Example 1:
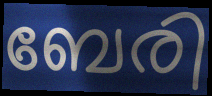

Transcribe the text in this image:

ബേരി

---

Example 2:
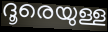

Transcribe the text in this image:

ദൂരെയുള്ള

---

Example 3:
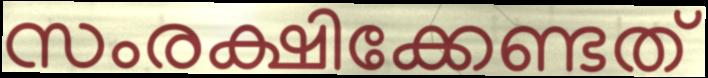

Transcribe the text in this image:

സംരക്ഷിക്കേണ്ടത്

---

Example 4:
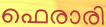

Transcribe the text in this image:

ഫെരാരി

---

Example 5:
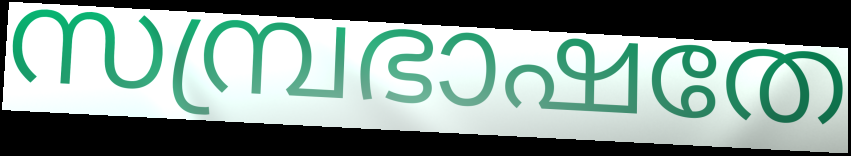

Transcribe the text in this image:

സമ്പ്രഭാഷതേ